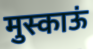
मुस्काऊं